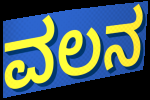
ವಲನ